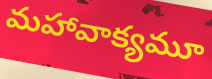
మహావాక్యమూ